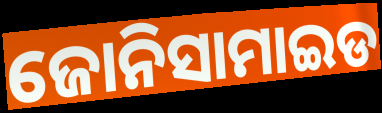
ଜୋନିସାମାଇଡ